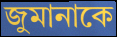
জুমানাকে